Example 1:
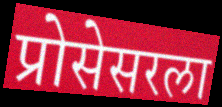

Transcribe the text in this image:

प्रोसेसरला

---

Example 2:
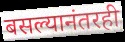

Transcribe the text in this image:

बसल्यानंतरही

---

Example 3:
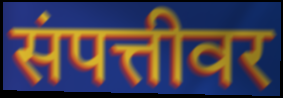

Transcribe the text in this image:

संपत्तीवर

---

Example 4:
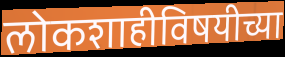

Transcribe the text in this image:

लोकशाहीविषयीच्या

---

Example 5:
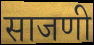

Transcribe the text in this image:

साजणी